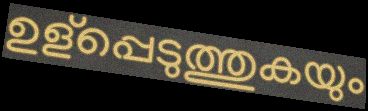
ഉള്പ്പെടുത്തുകയും